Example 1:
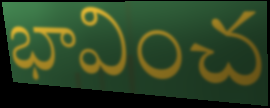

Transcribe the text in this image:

భావించ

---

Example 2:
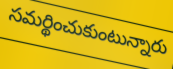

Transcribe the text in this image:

సమర్థించుకుంటున్నారు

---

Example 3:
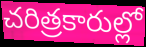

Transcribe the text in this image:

చరిత్రకారుల్లో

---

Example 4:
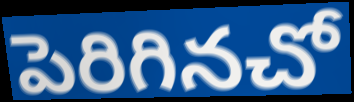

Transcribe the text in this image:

పెరిగినచో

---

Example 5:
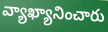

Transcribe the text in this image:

వ్యాఖ్యానించారు